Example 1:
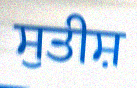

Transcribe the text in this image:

ਸੁਤੀਸ਼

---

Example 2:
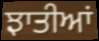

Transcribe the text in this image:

ਝਾਤੀਆਂ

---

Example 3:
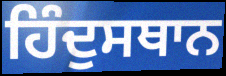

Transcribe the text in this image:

ਹਿੰਦੁਸਥਾਨ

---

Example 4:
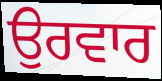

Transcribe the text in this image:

ਉਰਵਾਰ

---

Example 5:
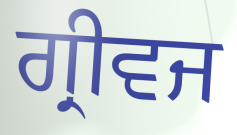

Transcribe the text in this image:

ਗ੍ਰੀਵਜ